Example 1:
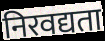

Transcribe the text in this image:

निरवद्यता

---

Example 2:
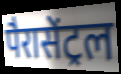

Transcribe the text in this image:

पैरासेंट्रल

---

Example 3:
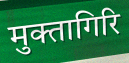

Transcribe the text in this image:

मुक्तागिरि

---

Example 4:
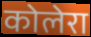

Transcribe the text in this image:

कोलेरा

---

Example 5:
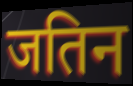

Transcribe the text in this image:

जतिन